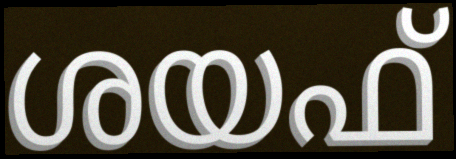
ശയഫ്